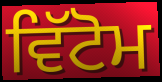
ਵਿੱਟੋਮ